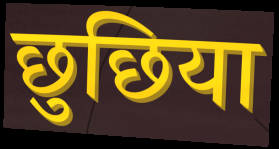
छुछिया